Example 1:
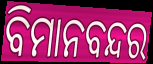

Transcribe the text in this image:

ବିମାନବନ୍ଦର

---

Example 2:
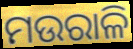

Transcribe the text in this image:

ମଉରାଳି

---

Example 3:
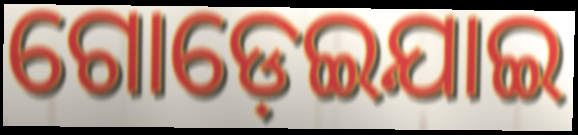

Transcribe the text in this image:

ଗୋଡ଼େଇଯାଇ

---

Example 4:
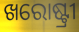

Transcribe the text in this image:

ଖରୋଷ୍ଟ୍ରୀ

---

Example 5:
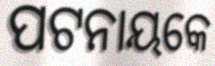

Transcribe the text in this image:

ପଟନାୟକେ